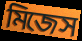
মিজেস